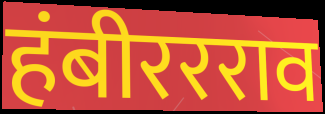
हंबीररराव